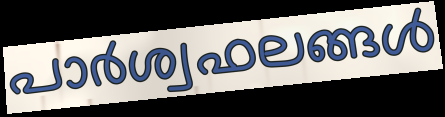
പാർശ്വഫലങ്ങൾ